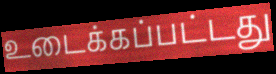
உடைக்கப்பட்டது